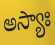
అస్యాః